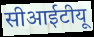
सीआईटीयू